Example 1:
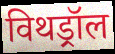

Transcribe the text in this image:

विथड्रॉल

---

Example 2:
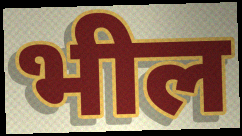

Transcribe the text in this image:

भील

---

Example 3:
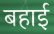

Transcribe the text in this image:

बहाई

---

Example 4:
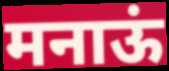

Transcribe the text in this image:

मनाऊं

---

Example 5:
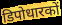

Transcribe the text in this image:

डिपोधारकों